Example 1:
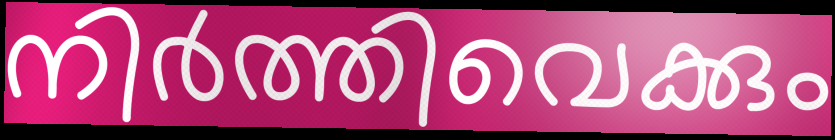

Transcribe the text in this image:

നിർത്തിവെക്കും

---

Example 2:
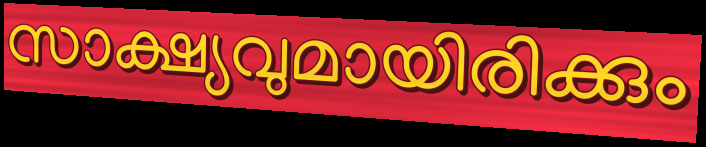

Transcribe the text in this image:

സാക്ഷ്യവുമായിരിക്കും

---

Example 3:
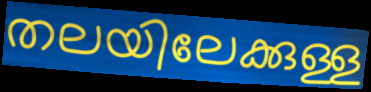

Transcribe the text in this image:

തലയിലേക്കുള്ള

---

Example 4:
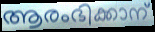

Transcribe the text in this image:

ആരംഭിക്കാന്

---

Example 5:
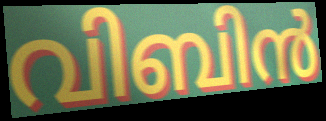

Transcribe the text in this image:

വിബിൻ